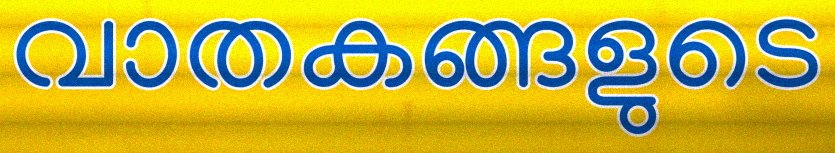
വാതകങ്ങളുടെ